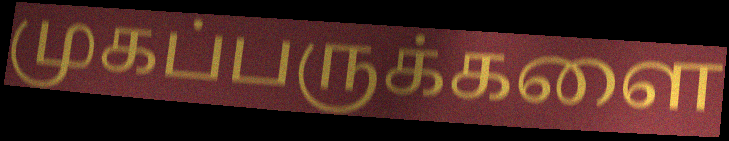
முகப்பருக்களை